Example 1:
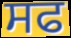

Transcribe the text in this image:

ਸਫ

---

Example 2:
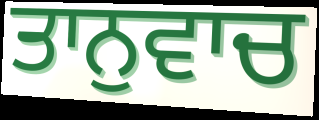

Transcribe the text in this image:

ਤਾਨੁਵਾਚ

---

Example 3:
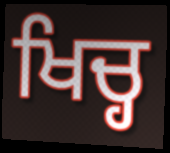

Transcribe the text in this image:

ਖਿਚ੍ਹ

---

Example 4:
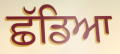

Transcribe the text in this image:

ਛੱਡਿਆ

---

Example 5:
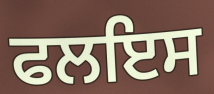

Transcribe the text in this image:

ਫਲਇਸ